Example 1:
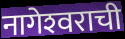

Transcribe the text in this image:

नागेश्‍वराची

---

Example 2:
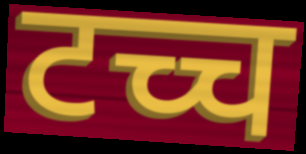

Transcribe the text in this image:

टच्च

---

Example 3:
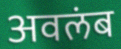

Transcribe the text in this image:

अवलंब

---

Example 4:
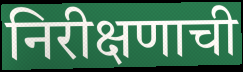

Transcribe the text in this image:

निरीक्षणाची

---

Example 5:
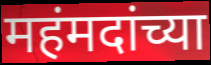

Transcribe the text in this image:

महंमदांच्या